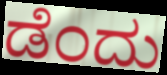
ಡೆಂದು